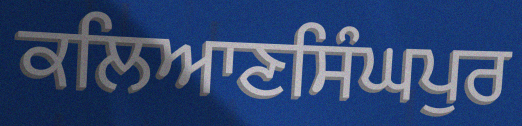
ਕਲਿਆਣਸਿੰਘਪੁਰ